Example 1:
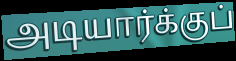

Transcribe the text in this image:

அடியார்க்குப்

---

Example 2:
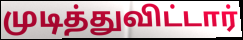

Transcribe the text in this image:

முடித்துவிட்டார்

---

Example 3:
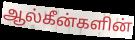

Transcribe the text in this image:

ஆல்கீன்களின்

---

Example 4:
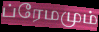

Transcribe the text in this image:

ப்ரேமமும்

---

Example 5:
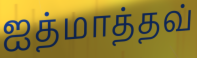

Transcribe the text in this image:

ஐத்மாத்தவ்